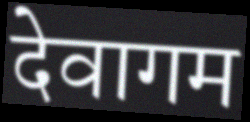
देवागम